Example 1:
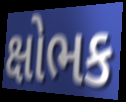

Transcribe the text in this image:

ક્ષોભક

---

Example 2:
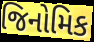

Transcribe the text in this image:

જિનોમિક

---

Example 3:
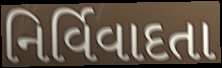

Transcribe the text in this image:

નિર્વિવાદતા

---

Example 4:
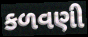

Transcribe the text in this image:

કળવણી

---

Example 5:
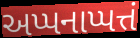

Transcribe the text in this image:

અપ્પનાપ્પત્તં